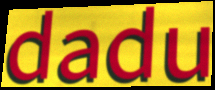
dadu